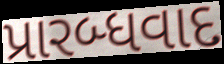
પ્રારબ્ધવાદ